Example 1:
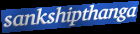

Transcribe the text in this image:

sankshipthanga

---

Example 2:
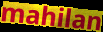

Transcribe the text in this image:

mahilan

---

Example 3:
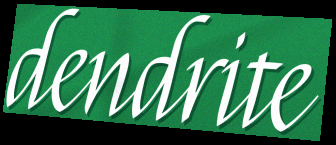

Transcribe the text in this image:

dendrite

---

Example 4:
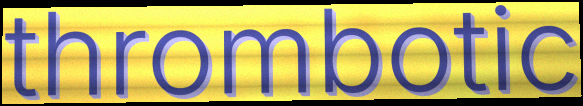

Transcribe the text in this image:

thrombotic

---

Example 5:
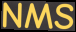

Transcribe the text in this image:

NMS